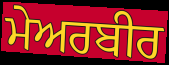
ਮੇਅਰਬੀਰ